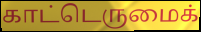
காட்டெருமைக்